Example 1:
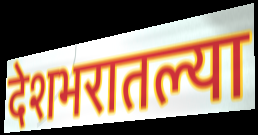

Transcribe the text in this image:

देशभरातल्या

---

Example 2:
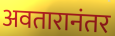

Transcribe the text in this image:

अवतारानंतर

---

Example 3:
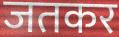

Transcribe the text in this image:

जतकर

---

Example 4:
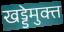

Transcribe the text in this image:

खड्डेमुक्त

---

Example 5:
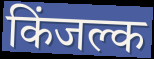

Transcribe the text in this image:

किंजल्क